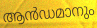
ആൻഡമാനും